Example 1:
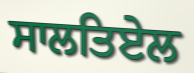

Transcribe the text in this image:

ਸਾਲਤਿਏਲ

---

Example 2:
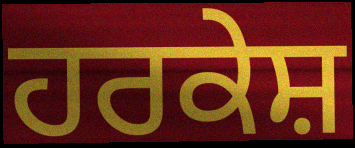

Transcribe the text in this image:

ਹਰਕੇਸ਼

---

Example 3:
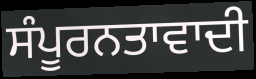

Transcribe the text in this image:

ਸੰਪੂਰਨਤਾਵਾਦੀ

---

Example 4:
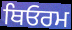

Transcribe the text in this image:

ਥਿਓਰਮ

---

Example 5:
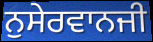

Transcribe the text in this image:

ਨੁਸੇਰਵਾਨਜੀ